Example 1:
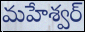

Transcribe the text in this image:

మహేశ్వర్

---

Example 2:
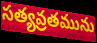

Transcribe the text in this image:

సత్యవ్రతమును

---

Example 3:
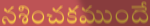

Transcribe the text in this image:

నశించకముందే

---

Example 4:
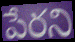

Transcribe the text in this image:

పేరని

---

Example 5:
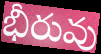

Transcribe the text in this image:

భీరువు